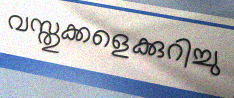
വസ്തുക്കളെക്കുറിച്ചു